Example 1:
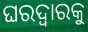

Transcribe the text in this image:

ଘରଦ୍ୱାରକୁ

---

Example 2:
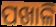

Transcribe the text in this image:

ପଖାଳି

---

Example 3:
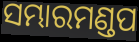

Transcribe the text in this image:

ସମ୍ଭାରମଣ୍ଡପ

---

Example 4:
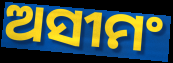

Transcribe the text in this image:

ଅସୀମଂ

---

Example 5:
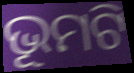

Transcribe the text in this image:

ଭୂମଟି